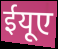
ईयूए